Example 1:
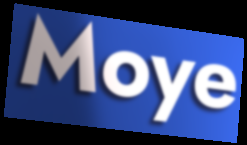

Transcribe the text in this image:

Moye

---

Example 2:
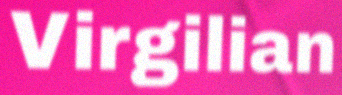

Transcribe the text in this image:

Virgilian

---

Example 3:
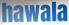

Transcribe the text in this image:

hawala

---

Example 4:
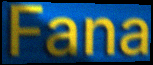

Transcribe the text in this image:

Fana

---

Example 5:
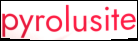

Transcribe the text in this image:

pyrolusite